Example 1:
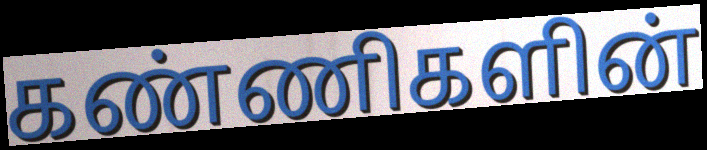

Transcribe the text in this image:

கண்ணிகளின்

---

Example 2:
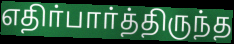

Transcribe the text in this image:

எதிர்பார்த்திருந்த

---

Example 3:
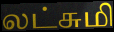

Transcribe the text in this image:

லட்சுமி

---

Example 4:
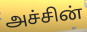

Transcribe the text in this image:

அச்சின்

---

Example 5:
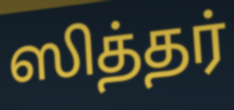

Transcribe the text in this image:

ஸித்தர்